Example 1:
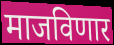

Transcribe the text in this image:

माजविणार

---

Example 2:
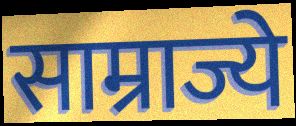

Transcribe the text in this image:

साम्राज्ये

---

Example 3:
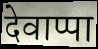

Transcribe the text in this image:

देवाप्पा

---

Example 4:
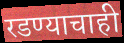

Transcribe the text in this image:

रडण्याचाही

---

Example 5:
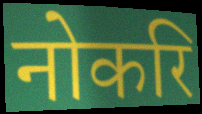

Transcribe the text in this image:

नोकरि